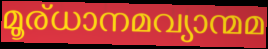
മൂര്ധാനമവ്യാന്മമ